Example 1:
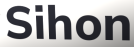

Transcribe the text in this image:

Sihon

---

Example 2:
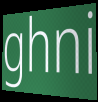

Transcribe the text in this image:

ghni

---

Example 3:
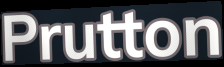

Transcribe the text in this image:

Prutton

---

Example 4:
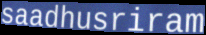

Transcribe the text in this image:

saadhusriram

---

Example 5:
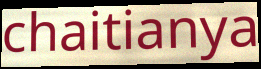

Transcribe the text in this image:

chaitianya